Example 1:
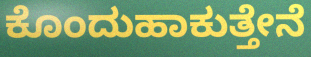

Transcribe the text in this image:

ಕೊಂದುಹಾಕುತ್ತೇನೆ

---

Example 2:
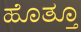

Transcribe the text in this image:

ಹೊತ್ತೂ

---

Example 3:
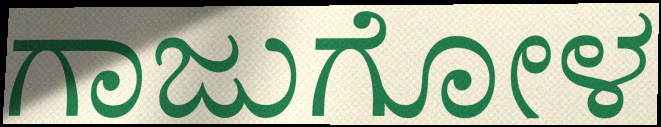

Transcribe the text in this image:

ಗಾಜುಗೋಳ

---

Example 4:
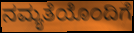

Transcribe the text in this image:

ನಮ್ಯತೆಯೊಂದಿಗೆ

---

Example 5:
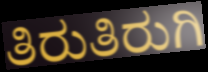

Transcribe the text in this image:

ತಿರುತಿರುಗಿ